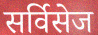
सर्विसेज